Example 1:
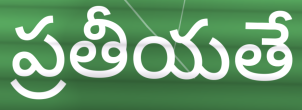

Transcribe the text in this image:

ప్రతీయతే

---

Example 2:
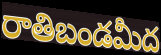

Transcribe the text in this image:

రాతిబండమీద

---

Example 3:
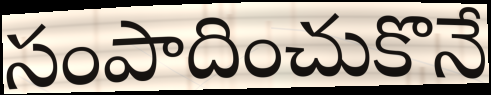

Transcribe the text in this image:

సంపాదించుకొనే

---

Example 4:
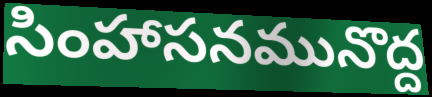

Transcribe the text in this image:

సింహాసనమునొద్ద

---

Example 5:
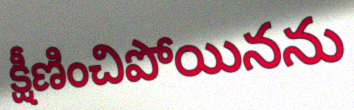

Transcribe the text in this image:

క్షీణించిపోయినను